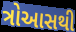
ત્રોઆસથી